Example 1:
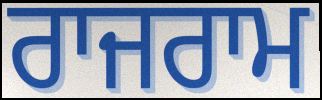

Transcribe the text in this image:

ਰਾਜਰਾਮ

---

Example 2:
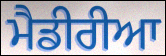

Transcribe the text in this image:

ਮੈਡੀਰੀਆ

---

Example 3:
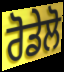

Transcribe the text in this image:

ਰੋਡੇਲੋ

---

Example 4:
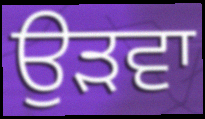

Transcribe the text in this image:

ਉੜਵਾ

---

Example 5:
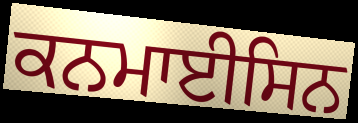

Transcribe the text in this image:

ਕਨਮਾਈਸਿਨ